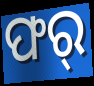
ଫର୍